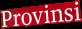
Provinsi